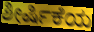
ಶೀರ್ಷಿಕೆಯ